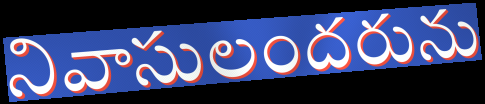
నివాసులందరును